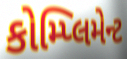
કોમ્પ્લિમેન્ટ